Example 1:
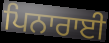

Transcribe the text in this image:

ਪਿਨਾਰਾਈ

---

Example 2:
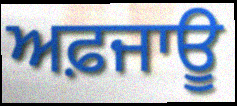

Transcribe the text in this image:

ਅਫ਼ਜਾਊ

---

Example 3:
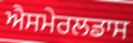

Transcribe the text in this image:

ਐਸਮੇਰਲਡਾਸ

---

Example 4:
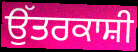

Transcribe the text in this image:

ਉੱਤਰਕਾਸ਼ੀ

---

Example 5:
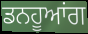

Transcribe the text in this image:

ਡਨਹੂਆਂਗ